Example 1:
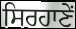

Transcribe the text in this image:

ਸਿਰਹਾਣੇਂ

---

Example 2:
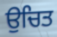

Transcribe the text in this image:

ਉਚਿਤ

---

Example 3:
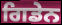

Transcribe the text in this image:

ਗਿਡੇਨ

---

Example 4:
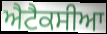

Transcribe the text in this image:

ਐਟੈਕਸੀਆ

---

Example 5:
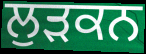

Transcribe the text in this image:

ਲੁੜਕਨ